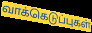
வாக்கெடுப்புகள்